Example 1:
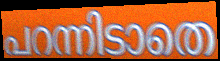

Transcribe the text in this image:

പറന്നിടാതെ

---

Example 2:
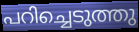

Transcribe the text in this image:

പറിച്ചെടുത്തു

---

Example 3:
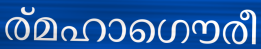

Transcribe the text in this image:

ര്മഹാഗൌരീ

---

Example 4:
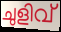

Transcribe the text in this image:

ചുളിവ്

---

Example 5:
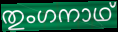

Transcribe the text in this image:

തുംഗനാഥ്